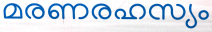
മരണരഹസ്യം